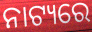
ନାଟ୍ୟରେ